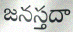
జనస్తదా